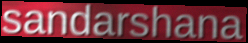
sandarshana